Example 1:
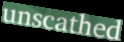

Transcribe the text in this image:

unscathed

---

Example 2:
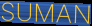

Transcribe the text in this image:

SUMAN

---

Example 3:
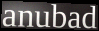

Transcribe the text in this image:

anubad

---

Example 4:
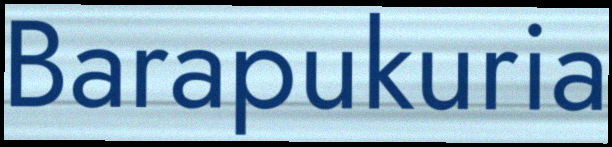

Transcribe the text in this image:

Barapukuria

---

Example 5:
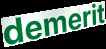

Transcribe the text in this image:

demerit